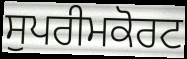
ਸੁਪਰੀਮਕੋਰਟ